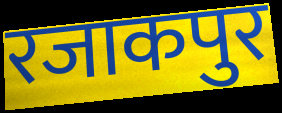
रजाकपुर